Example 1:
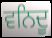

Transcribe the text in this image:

ਵਨਿਦੂ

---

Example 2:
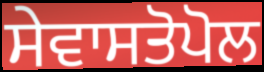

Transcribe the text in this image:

ਸੇਵਾਸਤੋਪੋਲ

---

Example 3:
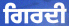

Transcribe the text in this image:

ਗਿਰਦੀ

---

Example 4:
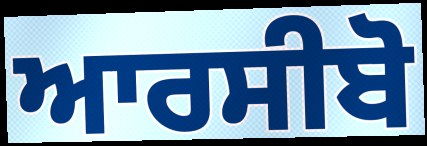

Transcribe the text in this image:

ਆਰਸੀਬੋ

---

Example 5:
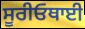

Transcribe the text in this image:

ਸੂਰੀਓਥਾਈ